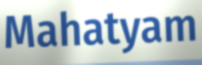
Mahatyam